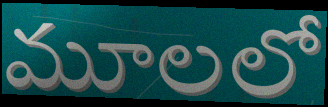
మూలలో